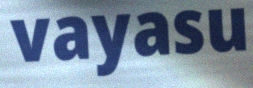
vayasu